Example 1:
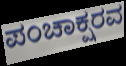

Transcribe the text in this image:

ಪಂಚಾಕ್ಷರವ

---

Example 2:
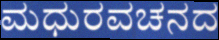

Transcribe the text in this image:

ಮಧುರವಚನದ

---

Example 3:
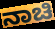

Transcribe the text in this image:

ನಾಚಿ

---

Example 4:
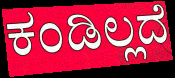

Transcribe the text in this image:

ಕಂಡಿಲ್ಲದೆ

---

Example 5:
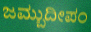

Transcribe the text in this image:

ಜಮ್ಬುದೀಪಂ